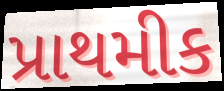
પ્રાથમીક